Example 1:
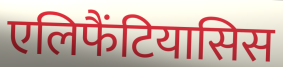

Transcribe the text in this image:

एलिफैंटियासिस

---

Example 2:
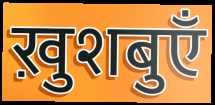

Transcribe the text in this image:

ख़ुशबुएँ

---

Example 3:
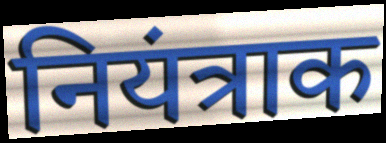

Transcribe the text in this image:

नियंत्राक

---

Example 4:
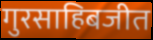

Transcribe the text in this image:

गुरसाहिबजीत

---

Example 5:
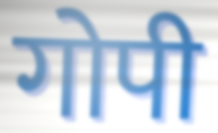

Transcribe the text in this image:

गोपी